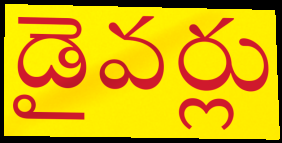
డైవర్లు